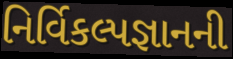
નિર્વિકલ્પજ્ઞાનની